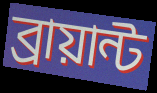
ব্রায়ান্ট